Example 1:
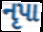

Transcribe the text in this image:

નૃપા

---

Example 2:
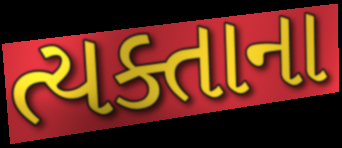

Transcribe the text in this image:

ત્યક્તાના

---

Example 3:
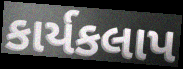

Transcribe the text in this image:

કાર્યકલાપ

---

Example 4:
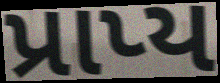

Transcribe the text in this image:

પ્રાપ્ય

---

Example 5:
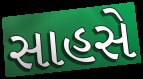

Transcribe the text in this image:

સાહસે